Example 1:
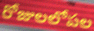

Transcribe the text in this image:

రోజులలోపల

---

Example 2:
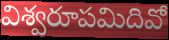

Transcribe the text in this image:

విశ్వరూపమిదివో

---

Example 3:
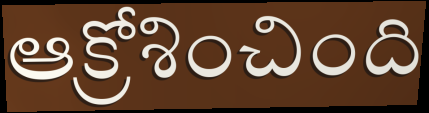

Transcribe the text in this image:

ఆక్రోశించింది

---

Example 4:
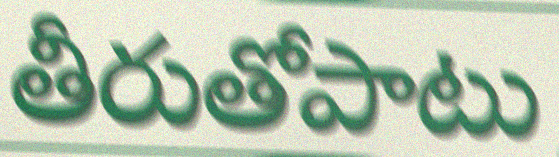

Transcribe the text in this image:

తీరుతోపాటు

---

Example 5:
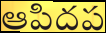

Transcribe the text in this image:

ఆపిదప